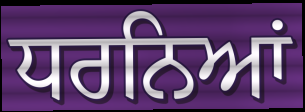
ਧਰਨਿਆਂ